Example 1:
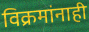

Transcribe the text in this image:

विक्रमांनाही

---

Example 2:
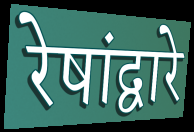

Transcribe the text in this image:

रेषांद्वारे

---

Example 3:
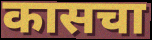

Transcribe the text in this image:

कासचा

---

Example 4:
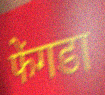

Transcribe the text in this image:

फेंगडा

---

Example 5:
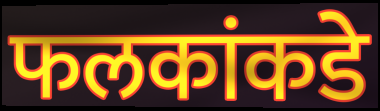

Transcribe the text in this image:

फलकांकडे